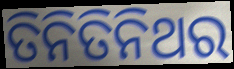
ତିନିତିନିଥର